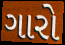
ગારો